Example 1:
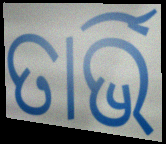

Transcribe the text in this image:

ତାର୍ଭି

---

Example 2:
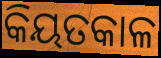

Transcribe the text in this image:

କିୟତକାଳ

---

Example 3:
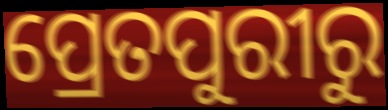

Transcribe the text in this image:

ପ୍ରେତପୁରୀରୁ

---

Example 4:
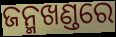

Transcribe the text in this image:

ଜନ୍ମଖଣ୍ଡରେ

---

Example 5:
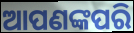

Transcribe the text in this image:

ଆପଣଙ୍କପରି